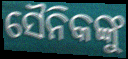
ସୈନିକଙ୍କୁ